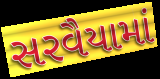
સરવૈયામાં